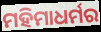
ମହିମାଧର୍ମର